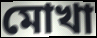
মোখা